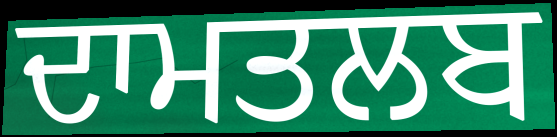
ਦਾਮਤਲਬ